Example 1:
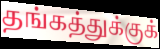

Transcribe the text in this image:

தங்கத்துக்குக்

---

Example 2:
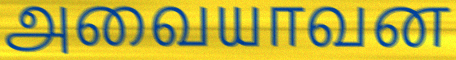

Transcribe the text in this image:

அவையாவன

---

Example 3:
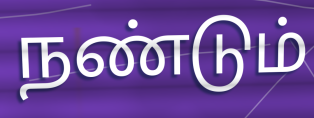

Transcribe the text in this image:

நண்டும்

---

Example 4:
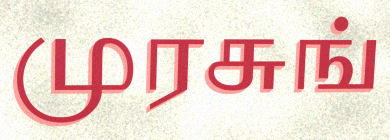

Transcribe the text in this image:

முரசுங்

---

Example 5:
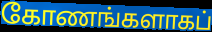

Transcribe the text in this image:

கோணங்களாகப்